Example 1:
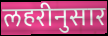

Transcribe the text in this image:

लहरीनुसार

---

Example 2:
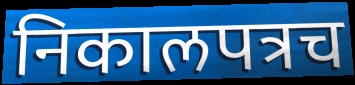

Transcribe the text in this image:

निकालपत्रच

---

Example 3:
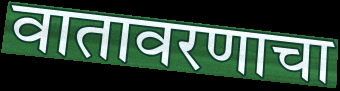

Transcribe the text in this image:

वातावरणाचा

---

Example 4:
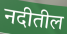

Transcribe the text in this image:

नदीतील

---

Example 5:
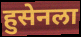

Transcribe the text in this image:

हुसेनला